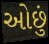
ઓછું